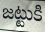
జట్టుకి